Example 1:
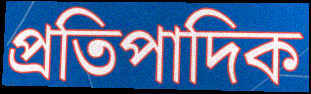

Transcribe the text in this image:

প্রতিপাদিক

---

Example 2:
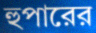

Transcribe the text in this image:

হুপারের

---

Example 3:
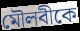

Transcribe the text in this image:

মৌলবীকে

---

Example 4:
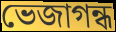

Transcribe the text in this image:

ভেজাগন্ধ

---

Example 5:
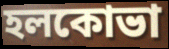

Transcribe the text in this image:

হলকোভা